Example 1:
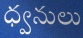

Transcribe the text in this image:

ధ్వనులు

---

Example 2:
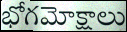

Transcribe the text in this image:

భోగమోక్షాలు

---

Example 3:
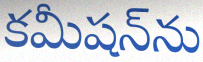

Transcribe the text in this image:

కమీషన్‌ను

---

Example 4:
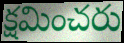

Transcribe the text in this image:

క్షమించరు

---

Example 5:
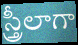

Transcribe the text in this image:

స్త్రీలాగా